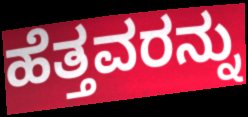
ಹೆತ್ತವರನ್ನು